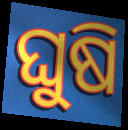
ଘୁଷି